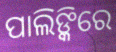
ପାଲିଙ୍କିରେ